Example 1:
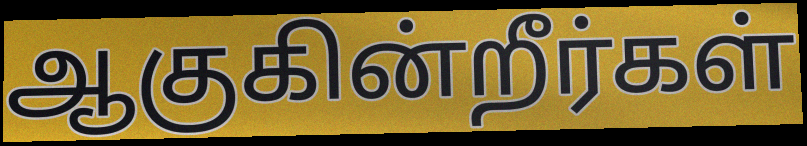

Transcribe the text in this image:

ஆகுகின்றீர்கள்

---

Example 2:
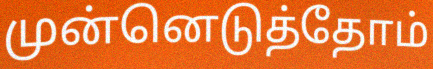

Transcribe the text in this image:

முன்னெடுத்தோம்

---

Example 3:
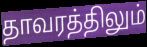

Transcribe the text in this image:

தாவரத்திலும்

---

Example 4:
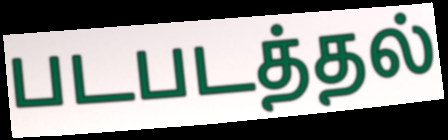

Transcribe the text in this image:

படபடத்தல்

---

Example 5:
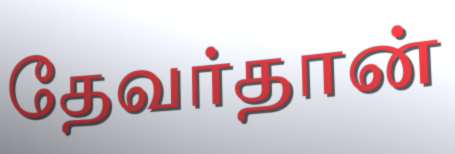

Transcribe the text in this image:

தேவர்தான்